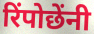
रिंपोछेंनी